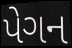
પેગન